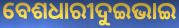
ବେଶଧାରୀଦୁଇଭାଇ